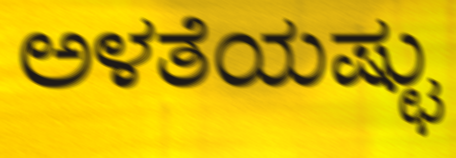
ಅಳತೆಯಷ್ಟು